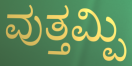
ವುತ್ತಮ್ಪಿ